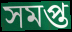
সমপ্ত